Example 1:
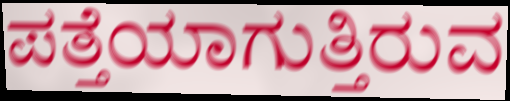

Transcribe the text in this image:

ಪತ್ತೆಯಾಗುತ್ತಿರುವ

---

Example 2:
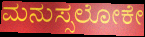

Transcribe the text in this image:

ಮನುಸ್ಸಲೋಕೇ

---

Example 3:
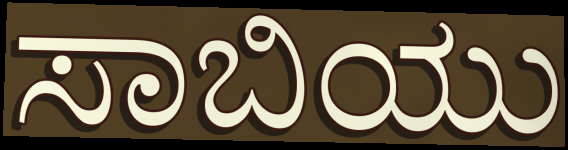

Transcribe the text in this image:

ಸಾಬಿಯು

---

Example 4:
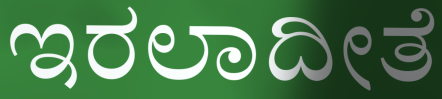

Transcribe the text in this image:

ಇರಲಾದೀತೆ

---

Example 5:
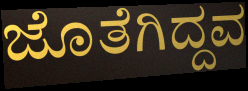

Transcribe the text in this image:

ಜೊತೆಗಿದ್ದವ